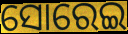
ସୋରେଇ